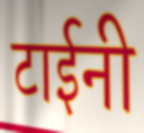
टाईनी